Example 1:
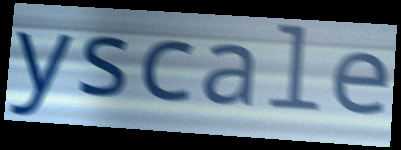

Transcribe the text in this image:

yscale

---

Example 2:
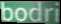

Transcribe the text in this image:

bodri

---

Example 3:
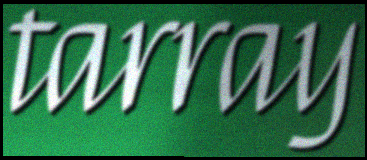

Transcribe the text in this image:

tarray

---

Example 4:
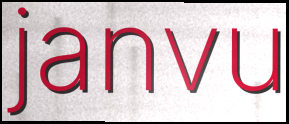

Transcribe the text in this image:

janvu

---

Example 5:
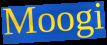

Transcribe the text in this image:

Moogi